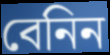
বেনিন